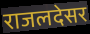
राजलदेसर